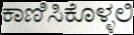
ಕಾಣಿಸಿಕೊಳ್ಳಲಿ